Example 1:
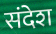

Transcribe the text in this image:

संदेश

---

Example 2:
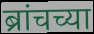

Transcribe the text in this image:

ब्रांचच्या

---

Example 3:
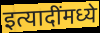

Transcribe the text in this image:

इत्यादींमध्ये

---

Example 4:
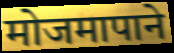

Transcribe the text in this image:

मोजमापाने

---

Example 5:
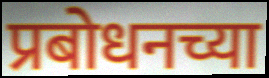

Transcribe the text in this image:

प्रबोधनच्या